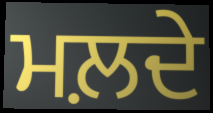
ਮਲ਼ਦੇ